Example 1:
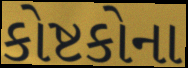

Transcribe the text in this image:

કોષ્ટકોના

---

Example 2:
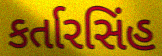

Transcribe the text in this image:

કર્તારસિંહ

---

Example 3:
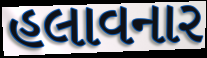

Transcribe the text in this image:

હલાવનાર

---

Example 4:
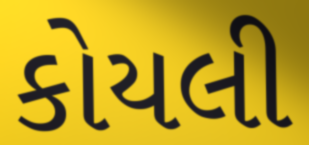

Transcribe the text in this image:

કોયલી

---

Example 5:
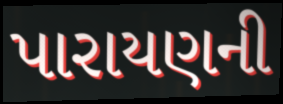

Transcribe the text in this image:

પારાયણની